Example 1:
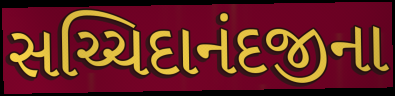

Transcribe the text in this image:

સચ્ચિદાનંદજીના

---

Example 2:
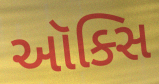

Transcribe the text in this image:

ઑક્સિ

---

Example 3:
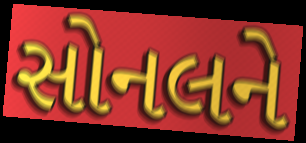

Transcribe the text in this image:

સોનલને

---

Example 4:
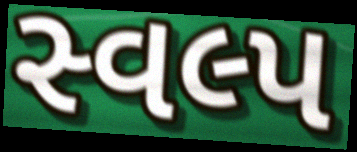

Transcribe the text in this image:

સ્વલ્પ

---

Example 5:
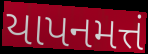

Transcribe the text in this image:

યાપનમત્તં